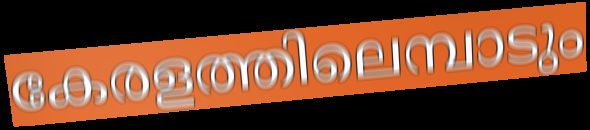
കേരളത്തിലെമ്പാടും